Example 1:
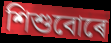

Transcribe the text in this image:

শিশুবোৰে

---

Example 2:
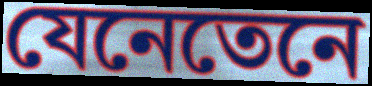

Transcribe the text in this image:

যেনেতেনে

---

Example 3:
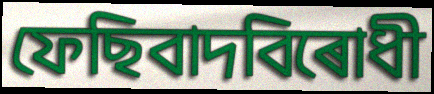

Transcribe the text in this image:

ফেছিবাদবিৰোধী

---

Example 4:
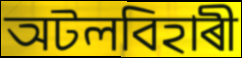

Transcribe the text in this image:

অটলবিহাৰী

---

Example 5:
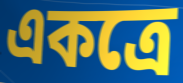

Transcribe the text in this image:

একত্ৰে